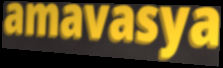
amavasya